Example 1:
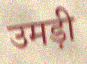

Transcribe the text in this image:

उमड़ी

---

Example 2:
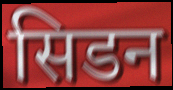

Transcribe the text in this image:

सिडन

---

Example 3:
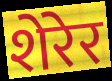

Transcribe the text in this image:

शेरेर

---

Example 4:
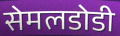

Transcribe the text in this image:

सेमलडोडी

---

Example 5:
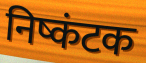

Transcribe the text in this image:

निष्कंटक